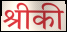
श्रीकी